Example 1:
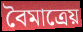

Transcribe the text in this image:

বৈমাত্রেয়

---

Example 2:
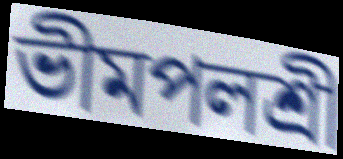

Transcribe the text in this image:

ভীমপলশ্রী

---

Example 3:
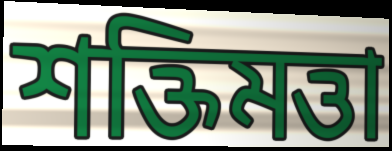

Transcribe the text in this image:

শক্তিমত্তা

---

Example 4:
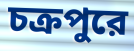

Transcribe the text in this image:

চক্রপুরে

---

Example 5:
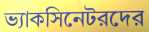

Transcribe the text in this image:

ভ্যাকসিনেটরদের